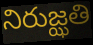
నిరుజ్ఝతి